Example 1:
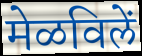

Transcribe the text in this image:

मेळविलें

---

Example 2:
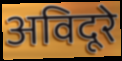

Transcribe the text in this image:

अविदूरे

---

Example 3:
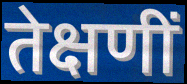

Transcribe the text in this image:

तेक्षणीं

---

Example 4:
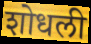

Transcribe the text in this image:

शोधली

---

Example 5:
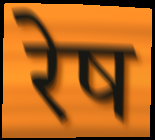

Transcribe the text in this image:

रेष